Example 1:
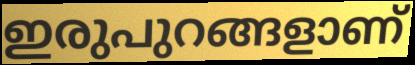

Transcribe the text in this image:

ഇരുപുറങ്ങളാണ്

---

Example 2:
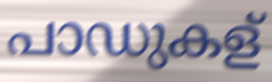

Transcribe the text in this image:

പാഡുകള്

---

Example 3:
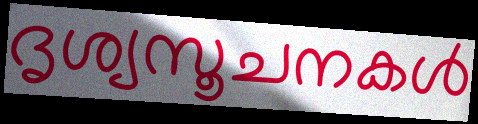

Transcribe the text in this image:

ദൃശ്യസൂചനകൾ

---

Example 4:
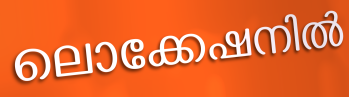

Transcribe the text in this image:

ലൊക്കേഷനിൽ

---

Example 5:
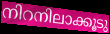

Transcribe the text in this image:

നിറനിലാക്കൂടു